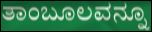
ತಾಂಬೂಲವನ್ನೂ